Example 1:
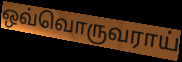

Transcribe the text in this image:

ஒவ்வொருவராய்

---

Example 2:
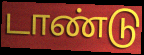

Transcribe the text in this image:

டாண்டு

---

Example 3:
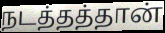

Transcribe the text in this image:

நடத்தத்தான்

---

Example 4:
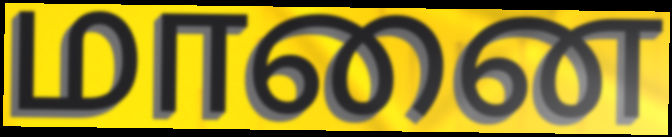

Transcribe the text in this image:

மானை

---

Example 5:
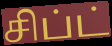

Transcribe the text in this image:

சிப்ட்